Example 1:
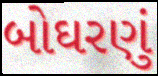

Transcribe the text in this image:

બોઘરણું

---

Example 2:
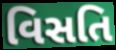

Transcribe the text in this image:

વિસતિ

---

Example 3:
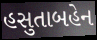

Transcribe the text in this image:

હસુતાબહેન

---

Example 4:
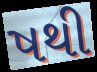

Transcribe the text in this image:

ષથી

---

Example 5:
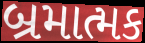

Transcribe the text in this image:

બ્રમાત્મક